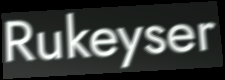
Rukeyser